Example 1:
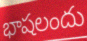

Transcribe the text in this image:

భాషలందు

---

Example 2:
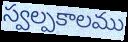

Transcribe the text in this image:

స్వల్పకాలము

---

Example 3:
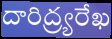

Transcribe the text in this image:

దారిద్ర్యరేఖ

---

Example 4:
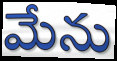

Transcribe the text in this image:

మేను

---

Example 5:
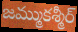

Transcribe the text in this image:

జమ్ముకశ్మీర్